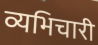
व्यभिचारी